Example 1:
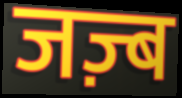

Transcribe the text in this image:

जज़्ब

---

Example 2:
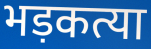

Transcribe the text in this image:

भड़कत्या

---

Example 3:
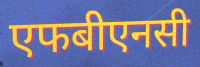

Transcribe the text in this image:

एफबीएनसी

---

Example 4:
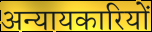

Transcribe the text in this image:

अन्यायकारियों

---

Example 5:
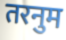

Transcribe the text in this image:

तरनुम